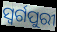
ସ୍ଵର୍ଗପୁରୀ